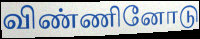
விண்ணினோடு